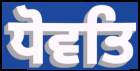
ਧੋਵਤਿ